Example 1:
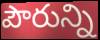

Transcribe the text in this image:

పౌరున్ని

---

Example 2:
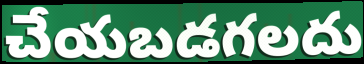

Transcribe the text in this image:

చేయబడగలదు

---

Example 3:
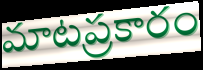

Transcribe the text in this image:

మాటప్రకారం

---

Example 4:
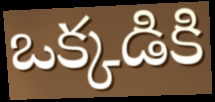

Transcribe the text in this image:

ఒక్కడికి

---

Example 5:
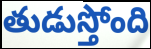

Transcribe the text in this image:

తుడుస్తోంది